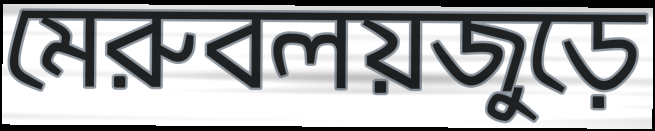
মেরুবলয়জুড়ে